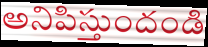
అనిపిస్తుందండి